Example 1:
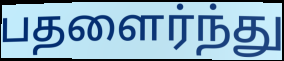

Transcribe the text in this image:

பதளைர்ந்து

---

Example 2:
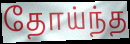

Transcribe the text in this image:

தோய்ந்த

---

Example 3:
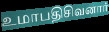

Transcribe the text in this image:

உமாபதிசிவனார்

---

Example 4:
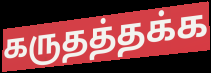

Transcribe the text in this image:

கருதத்தக்க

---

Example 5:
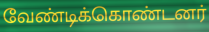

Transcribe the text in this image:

வேண்டிக்கொண்டனர்